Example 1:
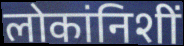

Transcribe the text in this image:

लोकांनिशीं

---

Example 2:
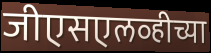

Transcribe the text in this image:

जीएसएलव्हीच्या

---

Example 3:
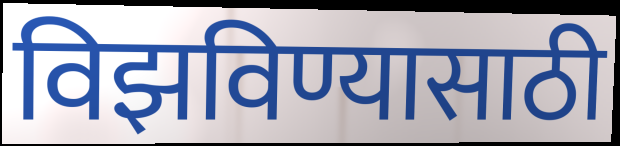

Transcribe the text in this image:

विझविण्यासाठी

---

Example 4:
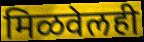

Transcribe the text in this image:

मिळवेलही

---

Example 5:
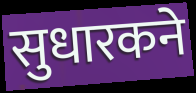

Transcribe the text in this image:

सुधारकने